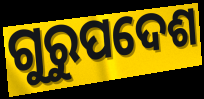
ଗୁରୁପଦେଶ